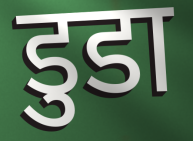
डुडा